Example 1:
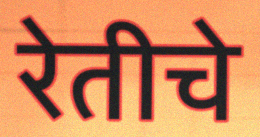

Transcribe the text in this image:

रेतीचे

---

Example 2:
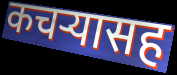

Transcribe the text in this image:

कचऱ्यासह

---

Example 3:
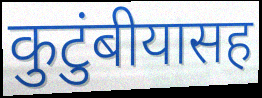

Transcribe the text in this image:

कुटुंबीयासह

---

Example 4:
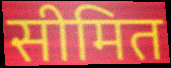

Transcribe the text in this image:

सीमित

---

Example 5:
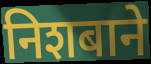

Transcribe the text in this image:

निशबाने